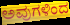
ಅವುಗಳಿಂದ